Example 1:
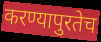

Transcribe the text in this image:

करण्यापुरतेच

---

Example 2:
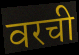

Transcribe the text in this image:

वरची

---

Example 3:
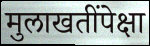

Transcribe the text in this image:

मुलाखतींपेक्षा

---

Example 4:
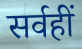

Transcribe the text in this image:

सर्वहीं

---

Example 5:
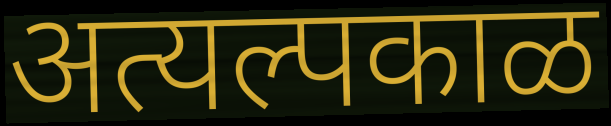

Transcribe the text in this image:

अत्यल्पकाळ